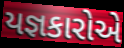
યજ્ઞકારોએ